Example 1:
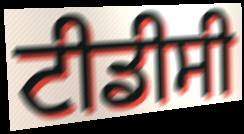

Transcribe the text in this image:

ਟੀਡੀਸੀ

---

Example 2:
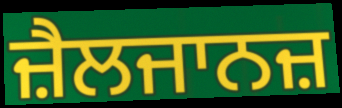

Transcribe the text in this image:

ਜ਼ੈਲਜਾਨਜ਼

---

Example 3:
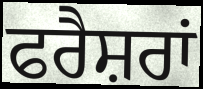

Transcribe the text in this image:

ਫਰੈਸ਼ਰਾਂ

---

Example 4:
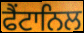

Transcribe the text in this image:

ਫੈਂਟਾਨਿਲ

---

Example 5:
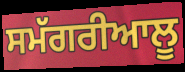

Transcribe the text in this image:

ਸਮੱਗਰੀਆਲੂ